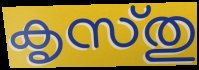
കൃസ്തു